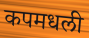
कपमधली